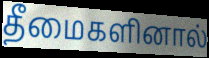
தீமைகளினால்